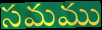
సమము